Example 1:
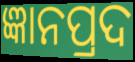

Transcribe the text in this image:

ଜ୍ଞାନପ୍ରଦ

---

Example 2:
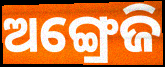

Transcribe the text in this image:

ଅଙ୍ଗ୍ରେଜି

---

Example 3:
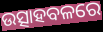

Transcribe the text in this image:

ଉତ୍ସାହବଳରେ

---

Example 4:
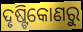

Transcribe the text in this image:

ଦୃଷ୍ଟିକୋଣରୁ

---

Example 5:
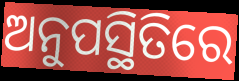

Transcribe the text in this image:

ଅନୁପସ୍ଥିତିରେ